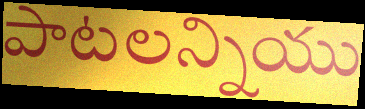
పాటలన్నియు